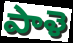
పాళె